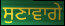
ਸੁਣਾਵਾਗੇ